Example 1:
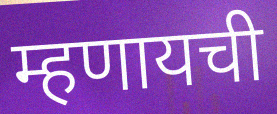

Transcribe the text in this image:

म्हणायची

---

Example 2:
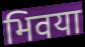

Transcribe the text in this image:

भिवया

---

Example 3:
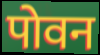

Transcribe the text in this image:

पोवन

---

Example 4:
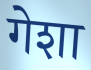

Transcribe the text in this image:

गेशा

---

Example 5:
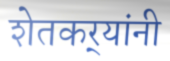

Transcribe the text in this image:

शेतकर्यांनी